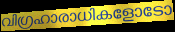
വിഗ്രഹാരാധികളോടോ